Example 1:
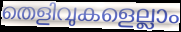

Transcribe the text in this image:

തെളിവുകളെല്ലാം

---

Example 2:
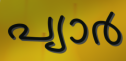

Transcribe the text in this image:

പ്യാർ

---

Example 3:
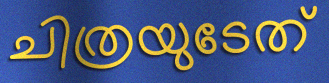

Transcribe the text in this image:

ചിത്രയുടേത്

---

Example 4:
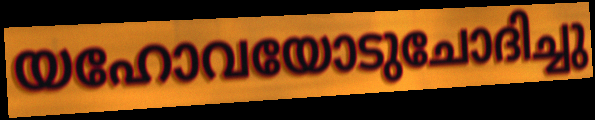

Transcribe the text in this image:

യഹോവയോടുചോദിച്ചു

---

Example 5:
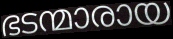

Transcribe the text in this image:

ഭടന്മാരായ